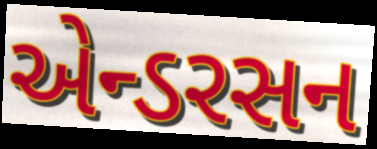
એન્ડરસન